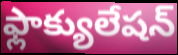
ఫ్లాక్యులేషన్